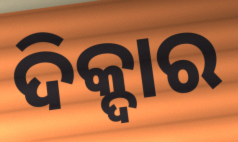
ଦିକ୍ଦାର